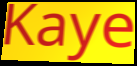
Kaye